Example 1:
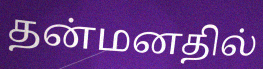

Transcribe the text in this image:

தன்மனதில்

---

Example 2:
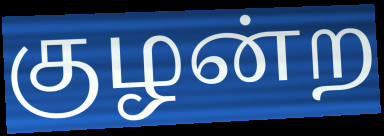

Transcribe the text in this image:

குழன்ற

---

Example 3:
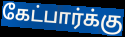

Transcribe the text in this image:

கேட்பார்க்கு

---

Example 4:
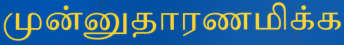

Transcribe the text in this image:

முன்னுதாரணமிக்க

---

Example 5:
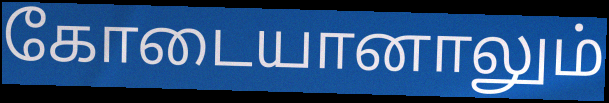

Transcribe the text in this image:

கோடையானாலும்